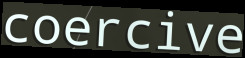
coercive